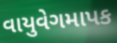
વાયુવેગમાપક